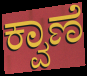
ಕ್ವಾಣೆ